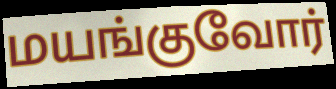
மயங்குவோர்